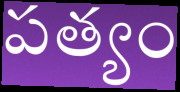
పత్యం